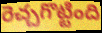
రెచ్చగొట్టింది